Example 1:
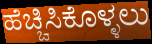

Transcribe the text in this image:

ಹೆಚ್ಚಿಸಿಕೊಳ್ಳಲು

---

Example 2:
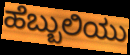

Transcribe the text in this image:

ಹೆಬ್ಬುಲಿಯು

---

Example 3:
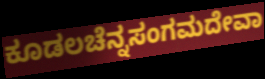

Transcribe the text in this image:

ಕೂಡಲಚೆನ್ನಸಂಗಮದೇವಾ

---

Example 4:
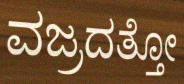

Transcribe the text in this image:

ವಜ್ರದತ್ತೋ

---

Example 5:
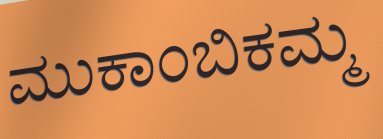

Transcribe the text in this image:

ಮುಕಾಂಬಿಕಮ್ಮ